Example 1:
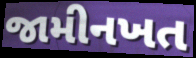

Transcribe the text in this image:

જામીનખત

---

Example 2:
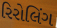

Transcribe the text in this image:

રિરોલિંગ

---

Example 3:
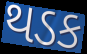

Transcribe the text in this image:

થડક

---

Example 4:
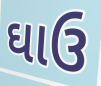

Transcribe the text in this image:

ઘાઉ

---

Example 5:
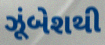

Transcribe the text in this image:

ઝૂંબેશથી